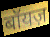
बॉयज़